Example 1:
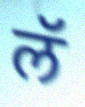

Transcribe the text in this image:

लॅ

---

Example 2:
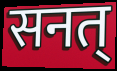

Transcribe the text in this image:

सनत्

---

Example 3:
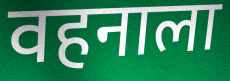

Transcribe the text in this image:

वहनाला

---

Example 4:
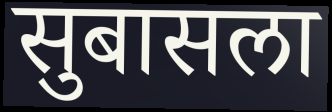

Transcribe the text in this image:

सुबासला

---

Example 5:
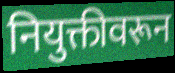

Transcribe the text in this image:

नियुक्तीवरून